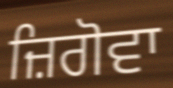
ਜ਼ਿਗੋਵਾ